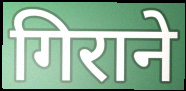
गिराने